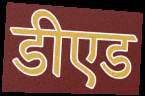
डीएड